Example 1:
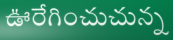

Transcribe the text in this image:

ఊరేగించుచున్న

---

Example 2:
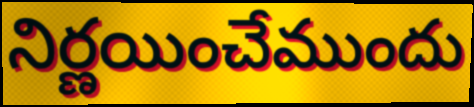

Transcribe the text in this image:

నిర్ణయించేముందు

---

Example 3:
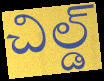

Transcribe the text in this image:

చిల్డ్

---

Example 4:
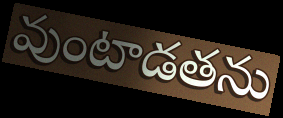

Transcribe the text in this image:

వుంటాడతను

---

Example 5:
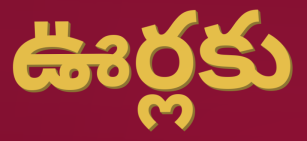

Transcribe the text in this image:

ఊర్లకు